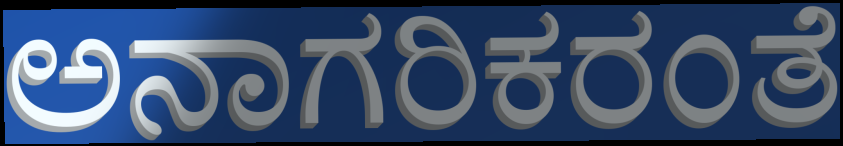
ಅನಾಗರಿಕರಂತೆ